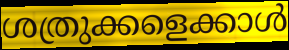
ശത്രുക്കളെക്കാൾ